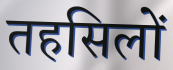
तहसिलों